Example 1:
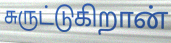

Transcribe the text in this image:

சுருட்டுகிறான்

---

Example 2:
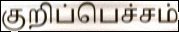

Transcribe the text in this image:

குறிப்பெச்சம்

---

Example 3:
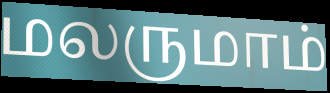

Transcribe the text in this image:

மலருமாம்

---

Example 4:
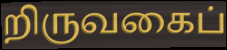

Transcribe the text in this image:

றிருவகைப்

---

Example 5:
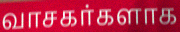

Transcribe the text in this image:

வாசகர்களாக